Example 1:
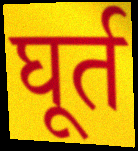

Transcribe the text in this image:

घूर्त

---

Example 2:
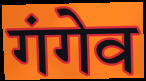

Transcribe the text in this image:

गंगेव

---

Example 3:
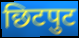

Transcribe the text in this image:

छिटपुट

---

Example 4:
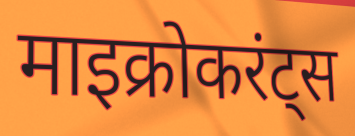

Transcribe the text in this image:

माइक्रोकरंट्स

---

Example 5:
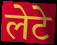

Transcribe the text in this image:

लेटे